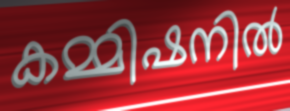
കമ്മിഷനിൽ